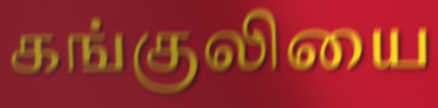
கங்குலியை